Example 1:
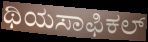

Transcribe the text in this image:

ಥಿಯಸಾಫಿಕಲ್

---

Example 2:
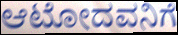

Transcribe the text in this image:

ಆಟೋದವನಿಗೆ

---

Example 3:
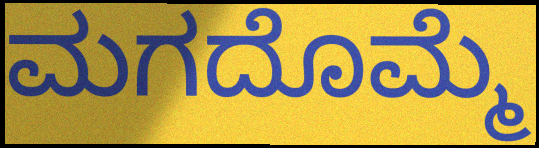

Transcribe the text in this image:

ಮಗದೊಮ್ಮೆ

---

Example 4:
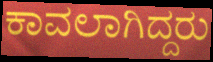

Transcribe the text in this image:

ಕಾವಲಾಗಿದ್ದರು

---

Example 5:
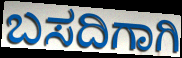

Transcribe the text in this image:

ಬಸದಿಗಾಗಿ